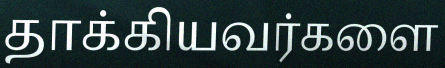
தாக்கியவர்களை